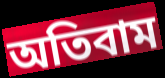
অতিবাম